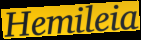
Hemileia